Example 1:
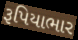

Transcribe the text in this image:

રૂપિયાભાર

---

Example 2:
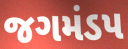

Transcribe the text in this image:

જગમંડપ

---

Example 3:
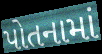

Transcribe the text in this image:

પોતનામાં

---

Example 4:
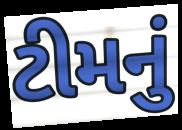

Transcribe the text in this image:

ટીમનું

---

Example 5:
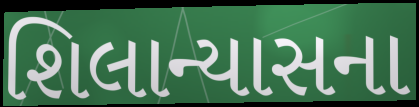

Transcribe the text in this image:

શિલાન્યાસના